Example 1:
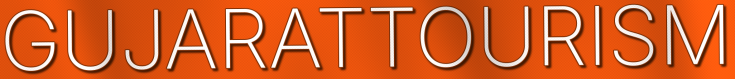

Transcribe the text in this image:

GUJARATTOURISM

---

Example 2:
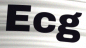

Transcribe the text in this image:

Ecg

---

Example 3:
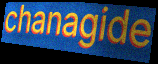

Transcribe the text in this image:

chanagide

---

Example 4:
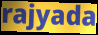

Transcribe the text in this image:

rajyada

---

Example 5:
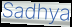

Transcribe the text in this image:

Sadhya